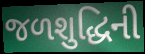
જળશુદ્ધિની